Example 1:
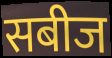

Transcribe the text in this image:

सबीज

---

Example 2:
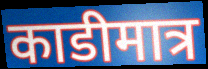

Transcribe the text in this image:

काडीमात्र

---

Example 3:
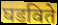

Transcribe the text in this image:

घडविते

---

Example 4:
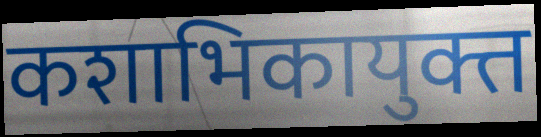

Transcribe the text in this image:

कशाभिकायुक्त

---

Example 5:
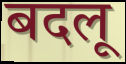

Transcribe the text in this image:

बदलू